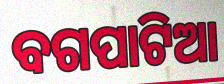
ବଗପାଟିଆ